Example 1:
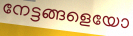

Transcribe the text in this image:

നേട്ടങ്ങളെയോ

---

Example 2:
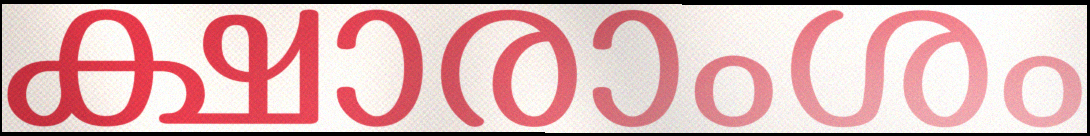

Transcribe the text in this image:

ക്ഷാരാംശം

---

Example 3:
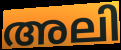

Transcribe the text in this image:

അലി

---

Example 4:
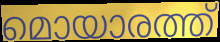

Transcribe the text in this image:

മൊയാരത്ത്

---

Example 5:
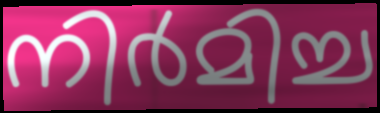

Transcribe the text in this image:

നിർമിച്ച